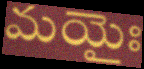
మయైః